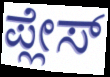
ಪ್ಲೇಸ್